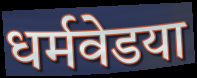
धर्मवेडया